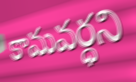
కామవర్ధని